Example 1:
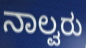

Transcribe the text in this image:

ನಾಲ್ವರು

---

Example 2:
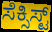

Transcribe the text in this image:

ಸೆಕ್ಸಿಸ್ಟ್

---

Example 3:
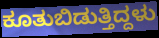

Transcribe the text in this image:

ಕೂತುಬಿಡುತ್ತಿದ್ದಳು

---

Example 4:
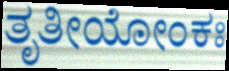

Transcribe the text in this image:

ತೃತೀಯೋಂಕಃ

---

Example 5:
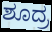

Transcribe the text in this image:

ಶೂದ್ರ